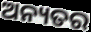
ଅନ୍ୟତର